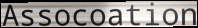
Assocoation